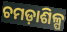
ଚମଡ଼ାଶିଳ୍ପ